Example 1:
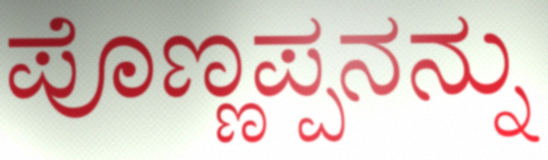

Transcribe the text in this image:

ಪೊಣ್ಣಪ್ಪನನ್ನು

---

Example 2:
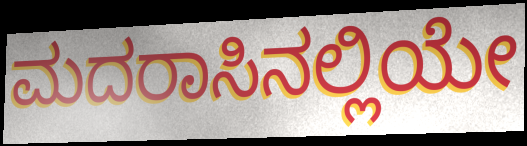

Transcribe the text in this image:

ಮದರಾಸಿನಲ್ಲಿಯೇ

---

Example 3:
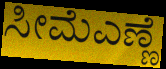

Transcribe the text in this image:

ಸೀಮೆಎಣ್ಣೆ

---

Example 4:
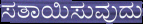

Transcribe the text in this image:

ಸತಾಯಿಸುವುದು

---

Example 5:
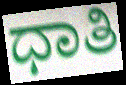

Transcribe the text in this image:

ಧಾತಿ